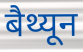
बैथ्यून